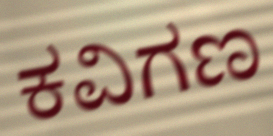
ಕವಿಗಣ